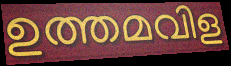
ഉത്തമവിള